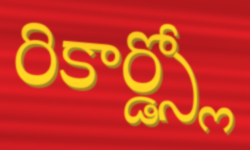
రికార్డ్స్లో